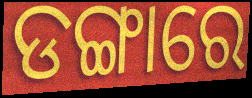
ଡଙ୍ଗାରେ